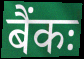
बैंकः